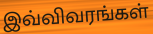
இவ்விவரங்கள்